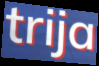
trija